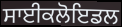
ਸਾਈਕਲੋਇਡਲ